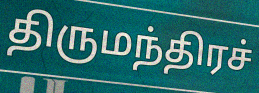
திருமந்திரச்